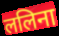
ललिना